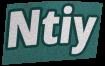
Ntiy